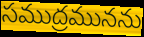
సముద్రమునను